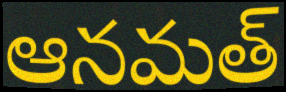
ఆనమత్